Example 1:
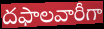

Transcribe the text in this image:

దఫాలవారీగా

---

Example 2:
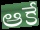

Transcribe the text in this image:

ఆకే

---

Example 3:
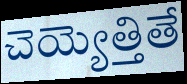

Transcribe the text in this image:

చెయ్యెత్తితే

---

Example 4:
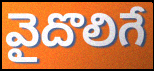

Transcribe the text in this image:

వైదొలిగే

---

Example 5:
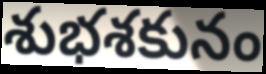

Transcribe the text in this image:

శుభశకునం